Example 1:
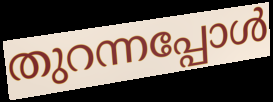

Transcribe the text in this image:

തുറന്നപ്പോൾ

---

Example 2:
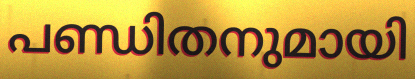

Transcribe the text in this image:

പണ്ഡിതനുമായി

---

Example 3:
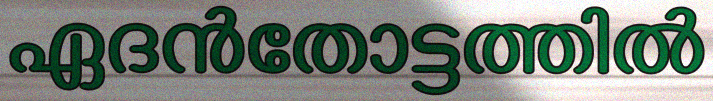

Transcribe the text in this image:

ഏദൻതോട്ടത്തിൽ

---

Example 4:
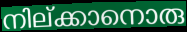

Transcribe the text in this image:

നില്ക്കാനൊരു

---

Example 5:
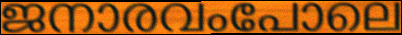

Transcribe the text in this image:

ജനാരവംപോലെ